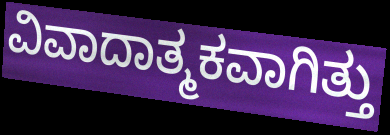
ವಿವಾದಾತ್ಮಕವಾಗಿತ್ತು